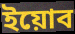
ইয়োব